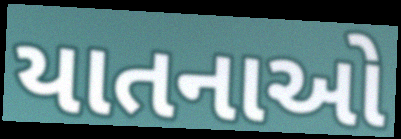
યાતનાઓ